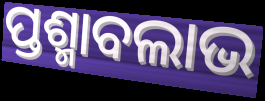
ପ୍ତଶ୍ମାବଲାଭ